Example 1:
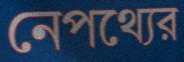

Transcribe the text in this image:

নেপথ্যের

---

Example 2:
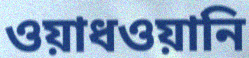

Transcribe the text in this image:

ওয়াধওয়ানি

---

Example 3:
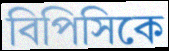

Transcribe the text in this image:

বিপিসিকে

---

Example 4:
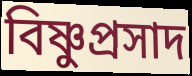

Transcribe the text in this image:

বিষ্ণুপ্রসাদ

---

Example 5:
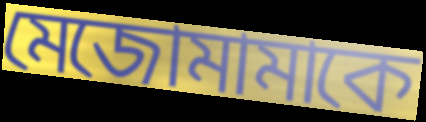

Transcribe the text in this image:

মেজোমামাকে